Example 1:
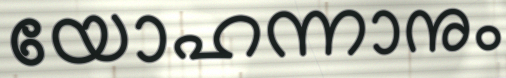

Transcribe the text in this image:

യോഹന്നാനും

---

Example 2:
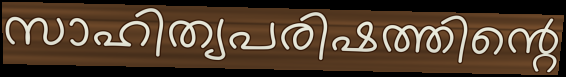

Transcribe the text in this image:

സാഹിത്യപരിഷത്തിന്റെ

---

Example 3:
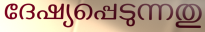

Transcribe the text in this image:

ദേഷ്യപ്പെടുന്നതു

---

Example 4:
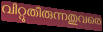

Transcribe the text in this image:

വിറ്റുതീരുന്നതുവരെ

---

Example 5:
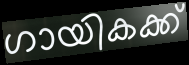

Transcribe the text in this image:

ഗായികക്ക്